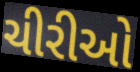
ચીરીઓ